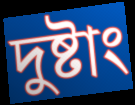
দুষ্টাং